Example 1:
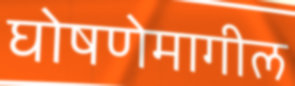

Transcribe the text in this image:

घोषणेमागील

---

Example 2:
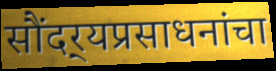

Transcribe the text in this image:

सौंदर्यप्रसाधनांचा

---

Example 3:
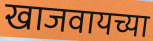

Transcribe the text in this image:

खाजवायच्या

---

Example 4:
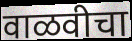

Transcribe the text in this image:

वाळवीचा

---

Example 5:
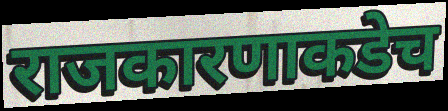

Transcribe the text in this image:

राजकारणाकडेच